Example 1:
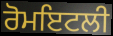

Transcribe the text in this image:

ਰੋਮਇਟਲੀ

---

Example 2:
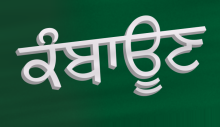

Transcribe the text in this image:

ਕੰਬਾਊਣ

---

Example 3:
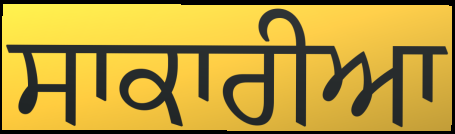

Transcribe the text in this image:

ਸਾਕਾਰੀਆ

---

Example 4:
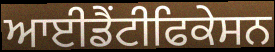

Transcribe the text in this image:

ਆਈਡੈਂਟੀਫਿਕੇਸਨ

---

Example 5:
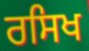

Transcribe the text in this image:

ਰਸਿਖ